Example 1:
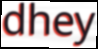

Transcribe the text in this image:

dhey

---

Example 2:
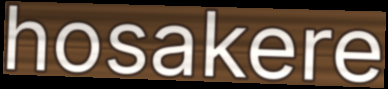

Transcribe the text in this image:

hosakere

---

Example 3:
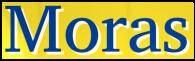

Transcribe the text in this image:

Moras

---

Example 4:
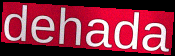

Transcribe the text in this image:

dehada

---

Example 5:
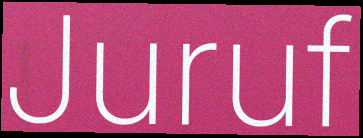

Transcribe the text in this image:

Juruf